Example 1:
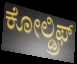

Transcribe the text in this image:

ಕೋಲ್ಡ್ರಿಫ್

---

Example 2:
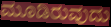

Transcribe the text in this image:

ಮೂಡಿರುವುದು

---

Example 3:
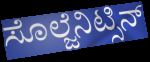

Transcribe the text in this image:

ಸೊಲ್ಜೆನಿಟ್ಸಿನ್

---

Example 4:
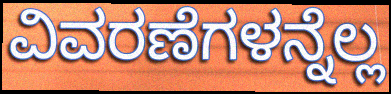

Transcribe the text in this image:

ವಿವರಣೆಗಳನ್ನೆಲ್ಲ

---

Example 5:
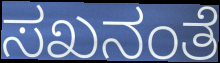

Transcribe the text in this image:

ಸಖನಂತೆ